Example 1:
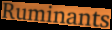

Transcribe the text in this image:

Ruminants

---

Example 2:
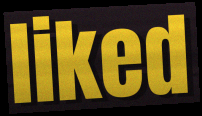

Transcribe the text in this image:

liked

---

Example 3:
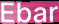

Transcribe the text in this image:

Ebar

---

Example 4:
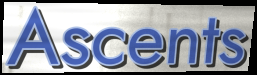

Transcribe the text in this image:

Ascents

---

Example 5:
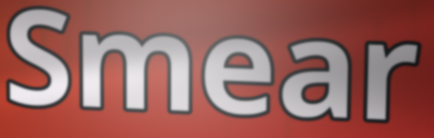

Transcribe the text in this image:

Smear